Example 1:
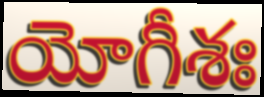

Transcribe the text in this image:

యోగీశః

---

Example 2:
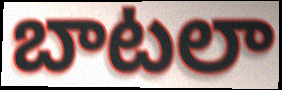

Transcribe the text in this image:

బాటలా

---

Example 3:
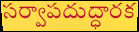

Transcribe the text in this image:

సర్వాపదుద్ధారక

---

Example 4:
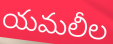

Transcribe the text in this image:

యమలీల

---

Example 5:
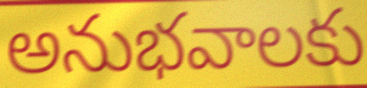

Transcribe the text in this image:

అనుభవాలకు